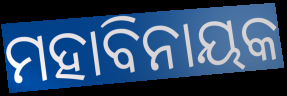
ମହାବିନାୟକ